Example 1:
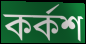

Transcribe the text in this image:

কৰ্কশ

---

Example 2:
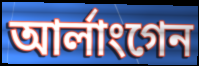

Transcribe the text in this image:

আৰ্লাংগেন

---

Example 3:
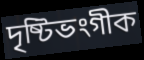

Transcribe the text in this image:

দৃষ্টিভংগীক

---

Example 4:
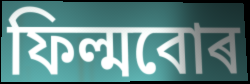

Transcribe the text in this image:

ফিল্মবোৰ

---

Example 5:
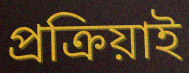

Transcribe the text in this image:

প্ৰক্ৰিয়াই